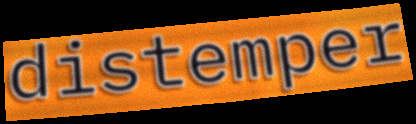
distemper